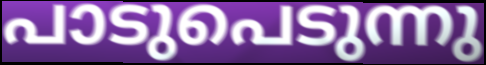
പാടുപെടുന്നു